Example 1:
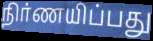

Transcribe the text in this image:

நிர்ணயிப்பது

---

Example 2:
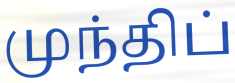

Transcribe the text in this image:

முந்திப்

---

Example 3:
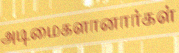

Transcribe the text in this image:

அடிமைகளானார்கள்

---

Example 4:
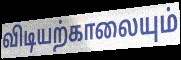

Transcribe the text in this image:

விடியற்காலையும்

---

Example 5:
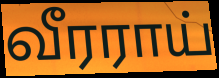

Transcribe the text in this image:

வீரராய்